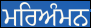
ਮਰਿਅੰਮਨ